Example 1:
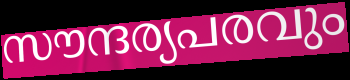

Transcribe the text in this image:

സൗന്ദര്യപരവും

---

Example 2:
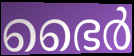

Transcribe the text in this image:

ഭൈർ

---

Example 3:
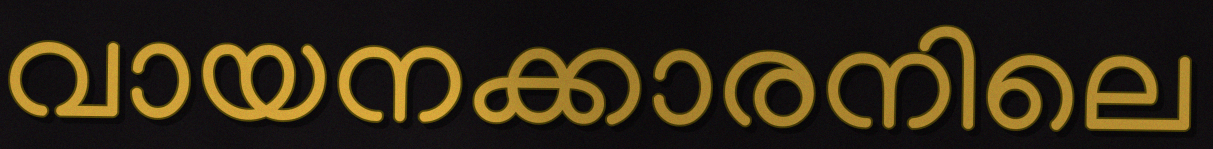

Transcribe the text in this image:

വായനക്കാരനിലെ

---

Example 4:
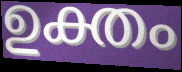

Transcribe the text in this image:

ഉക്തം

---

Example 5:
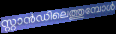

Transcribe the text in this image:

സ്റ്റാൻഡിലെത്തുമ്പോൾ